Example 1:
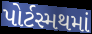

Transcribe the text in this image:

પોર્ટસ્મથમાં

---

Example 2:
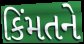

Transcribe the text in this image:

કિંમતને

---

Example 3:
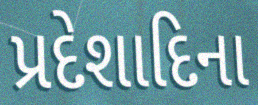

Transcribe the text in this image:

પ્રદેશાદિના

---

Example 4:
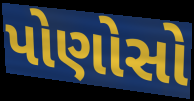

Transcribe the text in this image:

પોણોસો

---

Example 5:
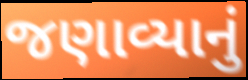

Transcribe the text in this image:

જણાવ્યાનું